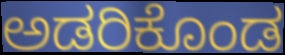
ಅಡರಿಕೊಂಡ